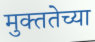
मुक्ततेच्या